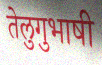
तेलुगुभाषी